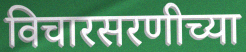
विचारसरणीच्या